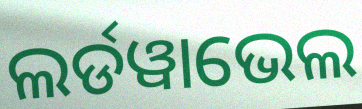
ଲର୍ଡୱାଭେଲ